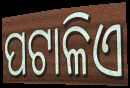
ପଟାଳିଏ